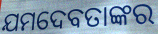
ଯମଦେବତାଙ୍କର